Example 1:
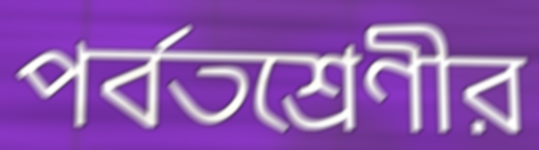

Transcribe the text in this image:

পর্বতশ্রেণীর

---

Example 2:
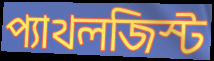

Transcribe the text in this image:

প্যাথলজিস্ট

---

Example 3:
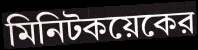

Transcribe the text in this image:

মিনিটকয়েকের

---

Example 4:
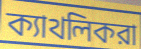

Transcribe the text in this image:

ক্যাথলিকরা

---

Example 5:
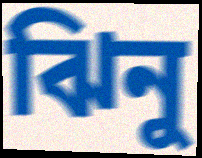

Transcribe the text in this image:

ঝিনু